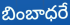
బింబాధరే